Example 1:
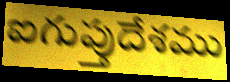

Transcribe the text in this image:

ఐగుప్తుదేశము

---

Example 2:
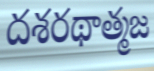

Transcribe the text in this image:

దశరథాత్మజ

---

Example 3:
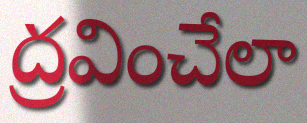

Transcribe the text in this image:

ద్రవించేలా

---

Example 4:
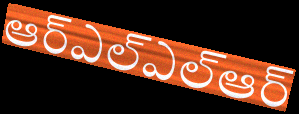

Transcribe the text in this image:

ఆర్ఎల్ఎల్ఆర్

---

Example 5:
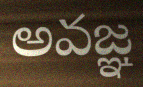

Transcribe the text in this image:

అవజ్ఞ